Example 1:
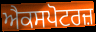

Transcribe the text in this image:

ਐਕਸਪੋਟਰਜ਼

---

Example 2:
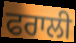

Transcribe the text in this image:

ਫਰਾਲੀ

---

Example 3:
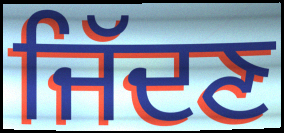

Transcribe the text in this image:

ਜਿੱਦਣ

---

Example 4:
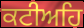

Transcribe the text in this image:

ਕਟੀਅਹਿ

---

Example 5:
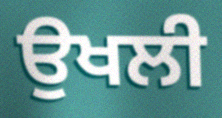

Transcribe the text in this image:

ਉਖਲੀ